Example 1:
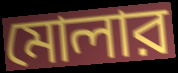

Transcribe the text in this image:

মোলার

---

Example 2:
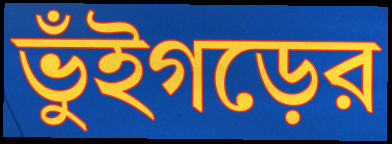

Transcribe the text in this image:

ভুঁইগড়ের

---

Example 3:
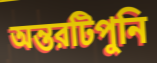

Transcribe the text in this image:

অন্তরটিপুনি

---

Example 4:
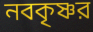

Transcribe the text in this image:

নবকৃষ্ণর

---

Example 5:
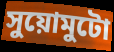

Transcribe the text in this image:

সুয়োমুটো